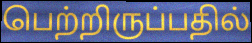
பெற்றிருப்பதில்